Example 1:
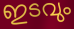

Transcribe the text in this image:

ഇടവും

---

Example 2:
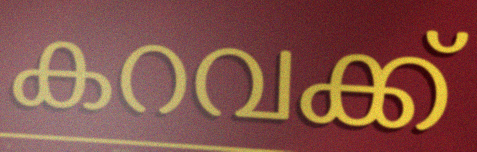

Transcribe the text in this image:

കറവക്ക്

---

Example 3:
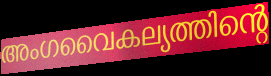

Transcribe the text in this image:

അംഗവൈകല്യത്തിന്റെ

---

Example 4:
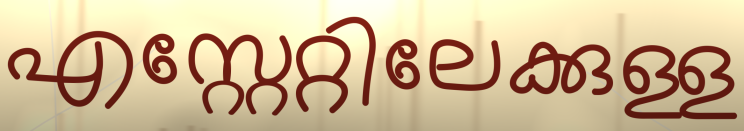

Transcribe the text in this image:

എസ്റ്റേറ്റിലേക്കുള്ള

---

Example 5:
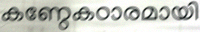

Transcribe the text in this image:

കണ്ഠേകഠാരമായി